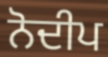
ਨੋਦੀਪ